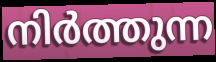
നിർത്തുന്ന